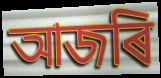
আজৰি